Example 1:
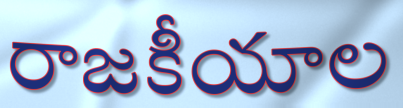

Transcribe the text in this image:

రాజకీయాల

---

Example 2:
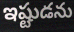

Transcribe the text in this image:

ఇష్టుడను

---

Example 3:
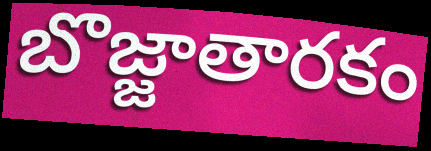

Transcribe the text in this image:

బొజ్జాతారకం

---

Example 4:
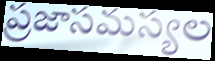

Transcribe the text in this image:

ప్రజాసమస్యల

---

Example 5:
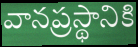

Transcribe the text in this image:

వానప్రస్థానికి